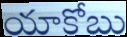
యాకోబు